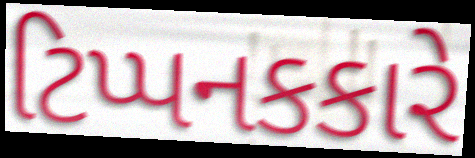
ટિપ્પનકકારે